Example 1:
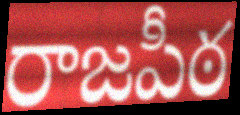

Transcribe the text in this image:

రాజపీఠ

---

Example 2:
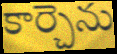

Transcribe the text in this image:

కార్చెను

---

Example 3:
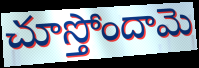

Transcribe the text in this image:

చూస్తోందామె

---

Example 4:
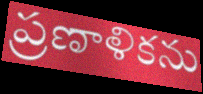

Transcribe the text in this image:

ప్రణాళికను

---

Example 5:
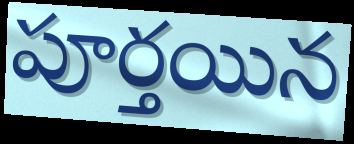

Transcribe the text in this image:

పూర్తయిన